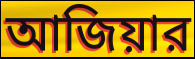
আজিয়ার